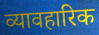
व्यावहारिक